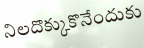
నిలదొక్కుకొనేందుకు